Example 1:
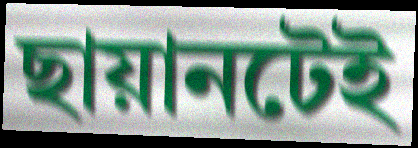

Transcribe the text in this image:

ছায়ানটেই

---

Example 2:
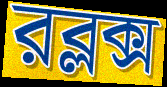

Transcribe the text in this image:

রব্লক্স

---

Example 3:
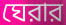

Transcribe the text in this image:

ঘেরার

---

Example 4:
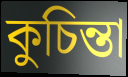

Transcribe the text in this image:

কুচিন্তা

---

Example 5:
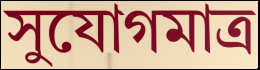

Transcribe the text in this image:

সুযোগমাত্র